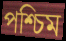
পশ্চিম